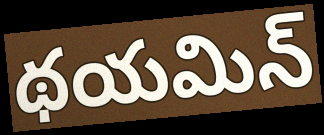
థయమిన్